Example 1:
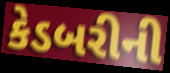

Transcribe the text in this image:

કેડબરીની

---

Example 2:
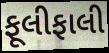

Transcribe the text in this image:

ફૂલીફાલી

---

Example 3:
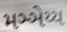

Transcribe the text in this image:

મઞ્ઞેય્ય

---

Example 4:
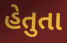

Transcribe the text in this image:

હેતુતા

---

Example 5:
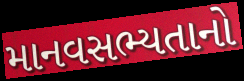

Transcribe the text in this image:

માનવસભ્યતાનો